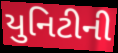
યુનિટીની